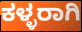
ಕಳ್ಳರಾಗಿ